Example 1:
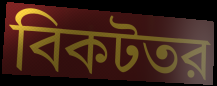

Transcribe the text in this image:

বিকটতর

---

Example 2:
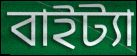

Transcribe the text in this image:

বাইট্যা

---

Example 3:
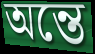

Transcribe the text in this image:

অন্তে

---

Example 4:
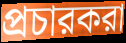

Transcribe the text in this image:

প্রচারকরা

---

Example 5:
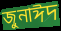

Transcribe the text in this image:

জুনাঈদ